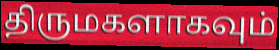
திருமகளாகவும்